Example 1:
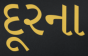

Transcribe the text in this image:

દૂરના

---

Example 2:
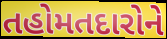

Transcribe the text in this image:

તહોમતદારોને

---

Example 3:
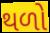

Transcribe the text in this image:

થળો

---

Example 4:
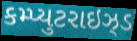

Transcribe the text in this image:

કમ્પ્યુટરાઇઝ્ડ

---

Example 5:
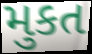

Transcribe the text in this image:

મુકત